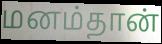
மனம்தான்